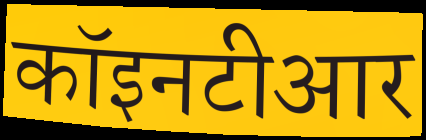
कॉइनटीआर